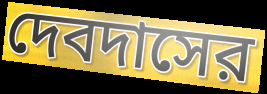
দেবদাসের